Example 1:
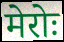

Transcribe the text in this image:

मेरोः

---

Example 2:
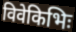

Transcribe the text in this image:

विवेकिभिः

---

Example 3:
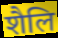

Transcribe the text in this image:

शैलि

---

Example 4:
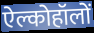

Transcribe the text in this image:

ऐल्कोहॉलों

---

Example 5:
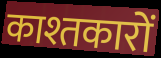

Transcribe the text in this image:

काश्तकारों